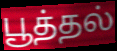
பூத்தல்